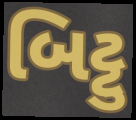
બિટ્ટુ